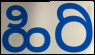
ಹಿರಿ